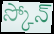
స్కోన్